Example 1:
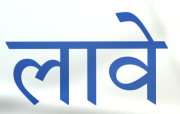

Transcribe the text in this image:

लावे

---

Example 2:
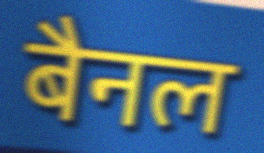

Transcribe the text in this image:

बैनल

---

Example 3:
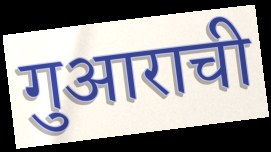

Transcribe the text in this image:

गुआराची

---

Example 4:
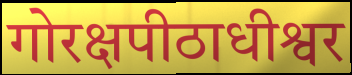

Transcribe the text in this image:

गोरक्षपीठाधीश्वर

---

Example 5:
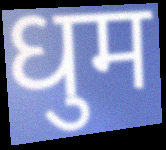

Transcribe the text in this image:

धुम